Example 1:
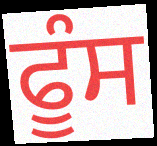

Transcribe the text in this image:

ਫੂੰਸ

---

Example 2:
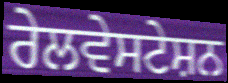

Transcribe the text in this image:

ਰੇਲਵੇਸਟੇਸ਼ਨ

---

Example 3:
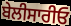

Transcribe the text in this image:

ਬੇਲੀਸਾਰੀਓ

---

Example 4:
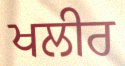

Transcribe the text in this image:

ਖਲੀਰ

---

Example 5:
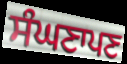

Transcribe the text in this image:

ਸੰਘਣਾਪਣ